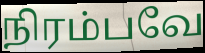
நிரம்பவே